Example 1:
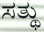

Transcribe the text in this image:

ಸತ್ಥು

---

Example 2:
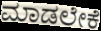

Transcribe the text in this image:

ಮಾಡಲೇಕೆ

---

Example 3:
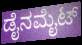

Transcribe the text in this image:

ಡೈನಮೈಟ್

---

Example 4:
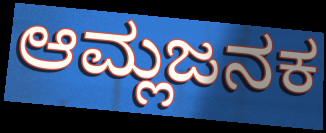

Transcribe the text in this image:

ಆಮ್ಲಜನಕ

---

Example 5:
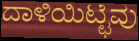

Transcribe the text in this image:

ದಾಳಿಯಿಟ್ಟೆವು